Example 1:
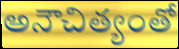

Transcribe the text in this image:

అనౌచిత్యంతో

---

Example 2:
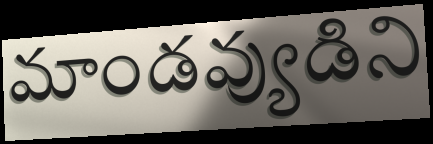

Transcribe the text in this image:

మాండవ్యుడిని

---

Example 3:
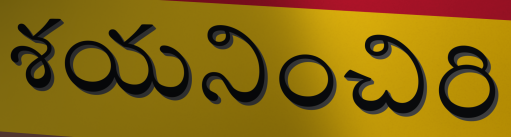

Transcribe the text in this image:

శయనించిరి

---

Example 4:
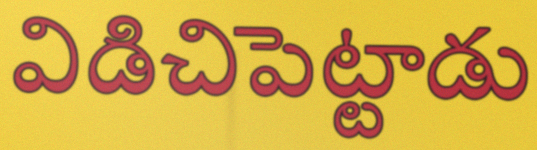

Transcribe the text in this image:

విడిచిపెట్టాడు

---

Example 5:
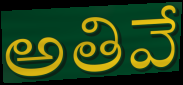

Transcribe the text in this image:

అతివే